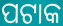
ପଟାକ